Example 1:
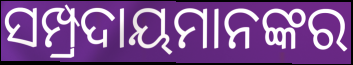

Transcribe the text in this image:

ସମ୍ପ୍ରଦାୟମାନଙ୍କର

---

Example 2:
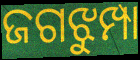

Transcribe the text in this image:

ଜଗଝୁମ୍ପା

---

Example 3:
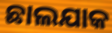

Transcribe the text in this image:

ଛାଲଯାକ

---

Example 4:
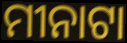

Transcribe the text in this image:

ମୀନାଟା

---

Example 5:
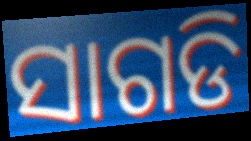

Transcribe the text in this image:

ସାଗଡି